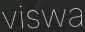
viswa